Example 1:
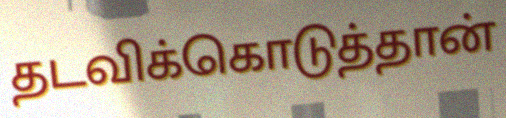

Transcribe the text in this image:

தடவிக்கொடுத்தான்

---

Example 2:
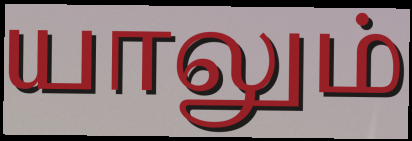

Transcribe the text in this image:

யாலும்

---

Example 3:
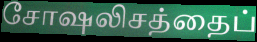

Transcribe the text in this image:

சோஷலிசத்தைப்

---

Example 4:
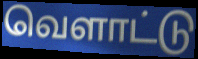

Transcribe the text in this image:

வெளாட்டு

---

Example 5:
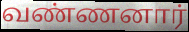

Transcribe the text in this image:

வண்ணனார்